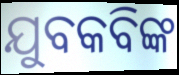
ଯୁବକବିଙ୍କ